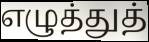
எழுத்துத்